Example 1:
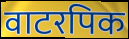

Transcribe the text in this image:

वाटरपिक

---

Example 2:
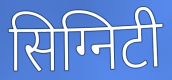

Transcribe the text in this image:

सिग्निटी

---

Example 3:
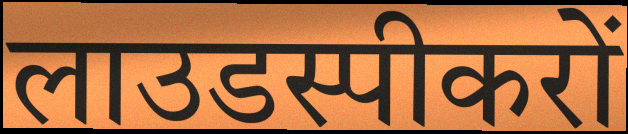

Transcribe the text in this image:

लाउडस्पीकरों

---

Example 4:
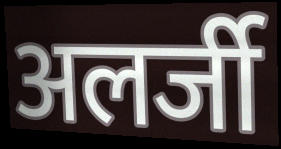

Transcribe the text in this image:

अलर्जी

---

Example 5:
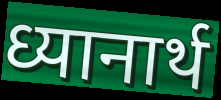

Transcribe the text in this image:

ध्यानार्थ